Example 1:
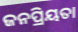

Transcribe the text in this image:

ଜନପ୍ରିୟତା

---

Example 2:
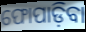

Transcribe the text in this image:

ଫୋପାଡ଼ିବା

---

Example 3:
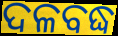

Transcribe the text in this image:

ଦଳବଦ୍ଧ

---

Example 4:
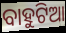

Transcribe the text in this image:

ବାହୁଟିଆ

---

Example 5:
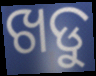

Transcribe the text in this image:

ଖଡୁ